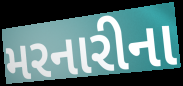
મરનારીના